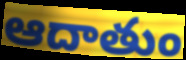
ఆదాతుం